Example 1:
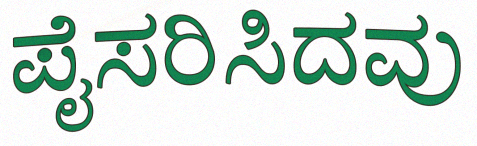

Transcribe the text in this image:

ಪೈಸರಿಸಿದವು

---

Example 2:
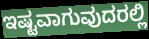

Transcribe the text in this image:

ಇಷ್ಟವಾಗುವುದರಲ್ಲಿ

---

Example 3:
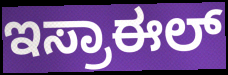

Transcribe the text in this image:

ಇಸ್ರಾಈಲ್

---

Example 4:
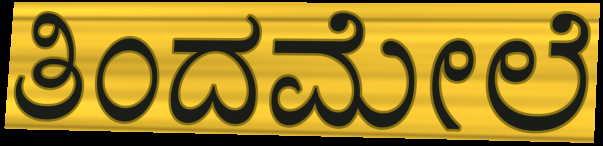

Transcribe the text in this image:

ತಿಂದಮೇಲೆ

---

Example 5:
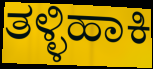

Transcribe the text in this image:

ತಳ್ಳಿಹಾಕಿ